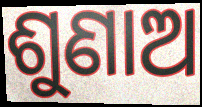
ଶୁଣାଅ